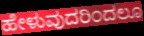
ಹೇಳುವುದರಿಂದಲೂ